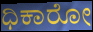
ಧಿಕಾರೋ